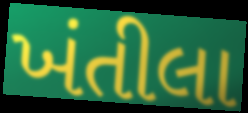
ખંતીલા